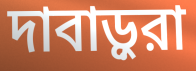
দাবাড়ুরা